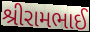
શ્રીરામભાઈ